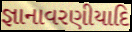
જ્ઞાનાવરણીયાદિ